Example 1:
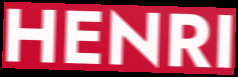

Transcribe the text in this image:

HENRI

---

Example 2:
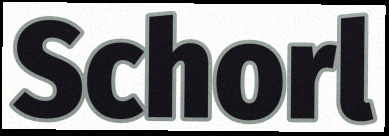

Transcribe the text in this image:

Schorl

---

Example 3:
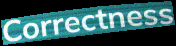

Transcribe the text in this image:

Correctness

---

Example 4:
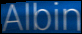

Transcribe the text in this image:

Albin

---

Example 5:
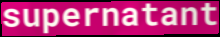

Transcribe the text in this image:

supernatant